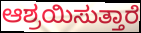
ಆಶ್ರಯಿಸುತ್ತಾರೆ